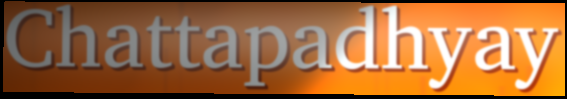
Chattapadhyay